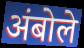
अंबोले